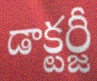
డాక్టర్జీ